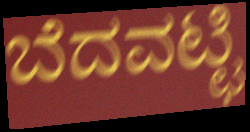
ಬೆದವಟ್ಟಿ